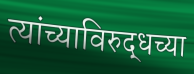
त्यांच्याविरुद्धच्या